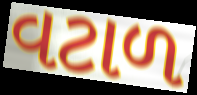
વટાળ